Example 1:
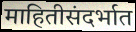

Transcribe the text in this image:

माहितीसंदर्भात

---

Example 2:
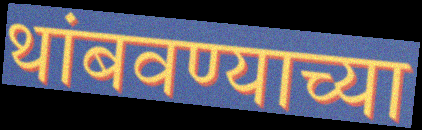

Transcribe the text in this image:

थांबवण्याच्या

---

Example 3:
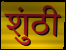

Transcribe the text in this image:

शुंठी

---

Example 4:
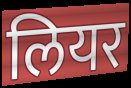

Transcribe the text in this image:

लियर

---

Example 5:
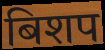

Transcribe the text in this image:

बिशप